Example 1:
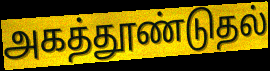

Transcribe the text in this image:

அகத்தூண்டுதல்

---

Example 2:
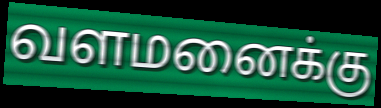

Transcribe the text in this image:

வளமனைக்கு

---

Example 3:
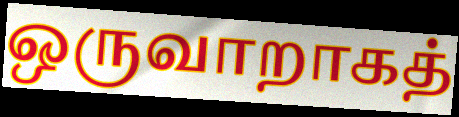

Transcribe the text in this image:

ஒருவாறாகத்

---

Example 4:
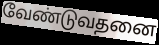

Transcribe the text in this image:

வேண்டுவதனை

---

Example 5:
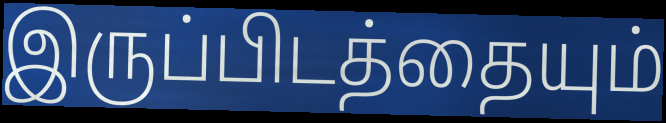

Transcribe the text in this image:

இருப்பிடத்தையும்